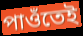
পাওঁতেই